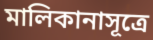
মালিকানাসূত্রে